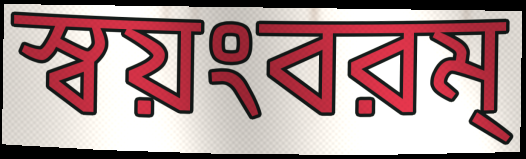
স্বয়ংবরম্